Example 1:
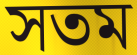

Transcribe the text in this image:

সতম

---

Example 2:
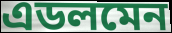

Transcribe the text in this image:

এডলমেন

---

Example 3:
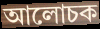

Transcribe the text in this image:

আলোচক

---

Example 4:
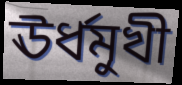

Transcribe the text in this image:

ঊৰ্ধমুখী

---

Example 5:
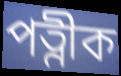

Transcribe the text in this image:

পত্নীক